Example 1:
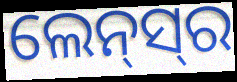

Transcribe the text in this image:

ଲେନ୍‌ସ୍‍ର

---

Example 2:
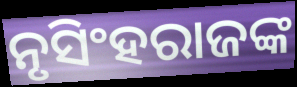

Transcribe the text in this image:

ନୃସିଂହରାଜଙ୍କ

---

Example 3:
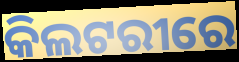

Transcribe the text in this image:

କିଲଟରୀରେ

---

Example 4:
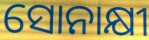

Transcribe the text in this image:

ସୋନାକ୍ଷୀ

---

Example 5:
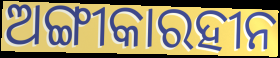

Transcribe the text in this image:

ଅଙ୍ଗୀକାରହୀନ